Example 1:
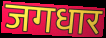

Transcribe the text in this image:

जगधार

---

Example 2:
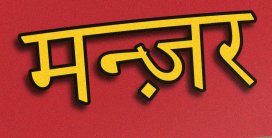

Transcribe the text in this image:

मन्ज़र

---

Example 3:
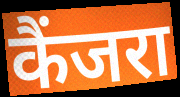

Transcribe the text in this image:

कैंजरा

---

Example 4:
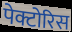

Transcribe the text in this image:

पेक्टोरिस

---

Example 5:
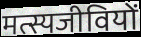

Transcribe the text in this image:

मत्स्यजीवियों